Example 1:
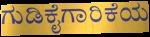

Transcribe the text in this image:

ಗುಡಿಕೈಗಾರಿಕೆಯ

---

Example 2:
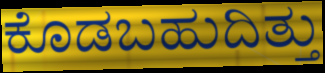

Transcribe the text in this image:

ಕೊಡಬಹುದಿತ್ತು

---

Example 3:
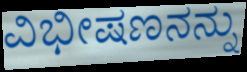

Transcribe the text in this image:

ವಿಭೀಷಣನನ್ನು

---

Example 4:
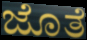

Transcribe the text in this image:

ಜೊತೆ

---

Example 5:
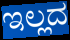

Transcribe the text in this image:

ಇಲ್ಲದ